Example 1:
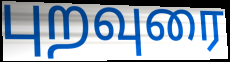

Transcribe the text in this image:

புறவுரை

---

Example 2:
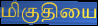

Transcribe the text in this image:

மிகுதியை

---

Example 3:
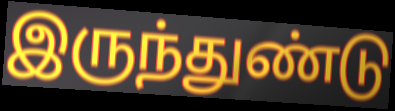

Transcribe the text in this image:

இருந்துண்டு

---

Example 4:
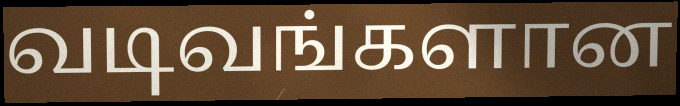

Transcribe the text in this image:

வடிவங்களான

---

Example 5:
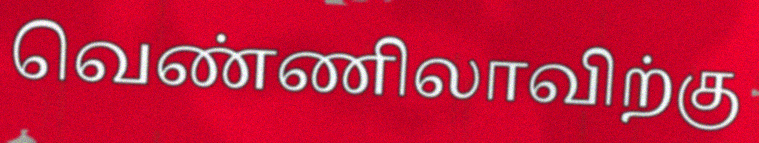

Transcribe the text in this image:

வெண்ணிலாவிற்கு